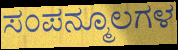
ಸಂಪನ್ಮೂಲಗಳ